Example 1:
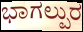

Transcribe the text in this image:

ಭಾಗಲ್ಪುರ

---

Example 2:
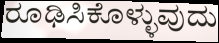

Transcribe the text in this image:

ರೂಢಿಸಿಕೊಳ್ಳುವುದು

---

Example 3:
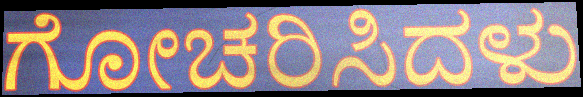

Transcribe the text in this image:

ಗೋಚರಿಸಿದಳು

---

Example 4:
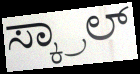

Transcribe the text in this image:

ಸ್ಕ್ರಾಲ್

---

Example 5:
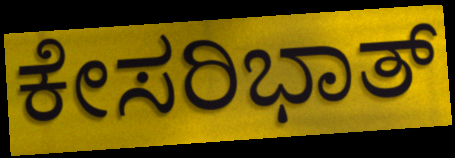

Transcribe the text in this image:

ಕೇಸರಿಭಾತ್